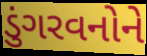
ડુંગરવનોને